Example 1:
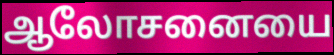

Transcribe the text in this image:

ஆலோசனையை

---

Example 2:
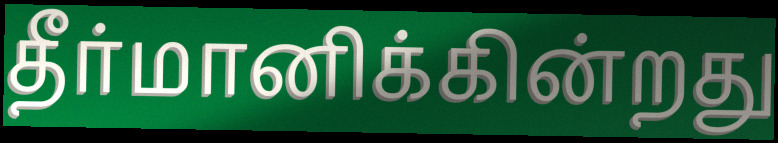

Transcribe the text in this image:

தீர்மானிக்கின்றது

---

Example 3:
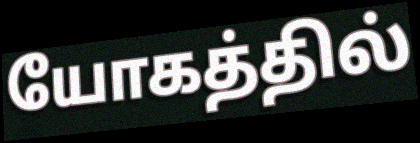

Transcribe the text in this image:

யோகத்தில்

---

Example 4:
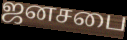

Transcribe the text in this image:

ஜனசபை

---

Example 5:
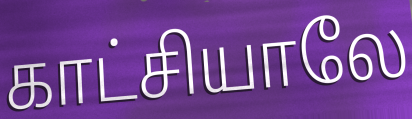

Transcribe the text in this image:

காட்சியாலே